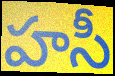
హసీ